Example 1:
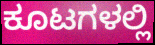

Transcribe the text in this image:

ಕೂಟಗಳಲ್ಲಿ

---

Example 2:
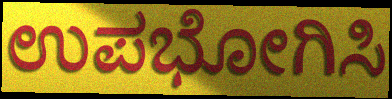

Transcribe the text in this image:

ಉಪಭೋಗಿಸಿ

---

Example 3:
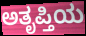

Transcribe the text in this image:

ಅತೃಪ್ತಿಯ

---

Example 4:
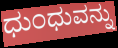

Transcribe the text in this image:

ಧುಂಧುವನ್ನು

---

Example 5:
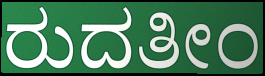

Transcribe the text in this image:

ರುದತೀಂ